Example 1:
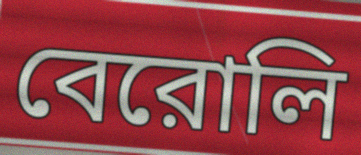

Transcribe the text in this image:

বেরোলি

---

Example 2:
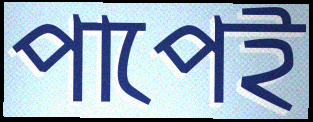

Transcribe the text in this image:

পাপেই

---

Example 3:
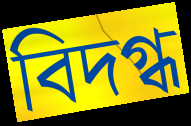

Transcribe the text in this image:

বিদগ্ধ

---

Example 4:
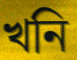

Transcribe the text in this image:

খনি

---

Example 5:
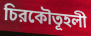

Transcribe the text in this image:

চিরকৌতূহলী